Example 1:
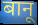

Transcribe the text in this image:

बानू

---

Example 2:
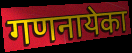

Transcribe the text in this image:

गणनायेका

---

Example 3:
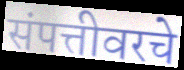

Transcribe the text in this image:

संपत्तीवरचे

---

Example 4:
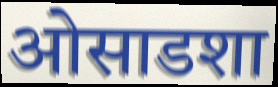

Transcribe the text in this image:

ओसाडशा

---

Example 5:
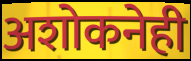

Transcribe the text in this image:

अशोकनेही